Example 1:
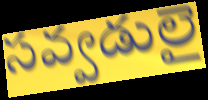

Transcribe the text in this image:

సవ్వడులై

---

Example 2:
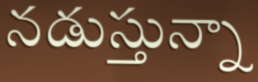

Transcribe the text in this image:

నడుస్తున్నా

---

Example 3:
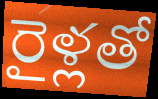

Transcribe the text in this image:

రైళ్లతో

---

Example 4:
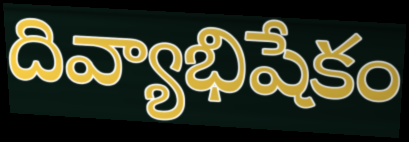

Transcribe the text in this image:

దివ్యాభిషేకం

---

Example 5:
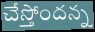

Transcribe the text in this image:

చేస్తోందన్న